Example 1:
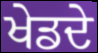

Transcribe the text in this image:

ਖੇਡਦੇ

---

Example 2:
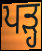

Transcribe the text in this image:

ਪੜ੍ਹ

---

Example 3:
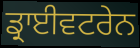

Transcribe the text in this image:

ਡ੍ਰਾਈਵਟਰੇਨ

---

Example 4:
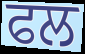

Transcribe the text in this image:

ਫਲ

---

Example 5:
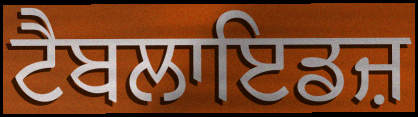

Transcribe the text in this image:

ਟੈਬਲਾਇਡਜ਼